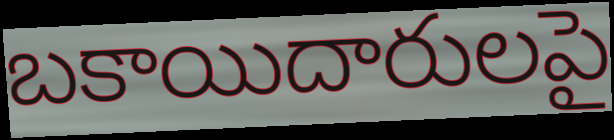
బకాయిదారులపై